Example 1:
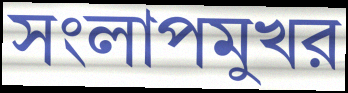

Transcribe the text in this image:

সংলাপমুখর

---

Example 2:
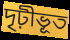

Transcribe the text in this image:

দৃঢ়ীভূত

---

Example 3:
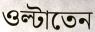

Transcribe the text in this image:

ওল্টাতেন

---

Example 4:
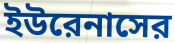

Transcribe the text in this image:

ইউরেনাসের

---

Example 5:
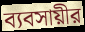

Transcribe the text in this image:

ব্যবসায়ীর